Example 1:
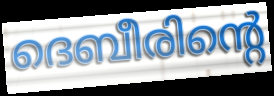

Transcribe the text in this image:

ദെബീരിന്റെ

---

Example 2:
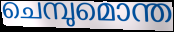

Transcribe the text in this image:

ചെമ്പുമൊന്ത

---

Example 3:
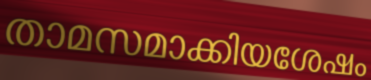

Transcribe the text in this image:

താമസമാക്കിയശേഷം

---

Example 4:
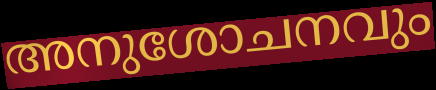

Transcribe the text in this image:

അനുശോചനവും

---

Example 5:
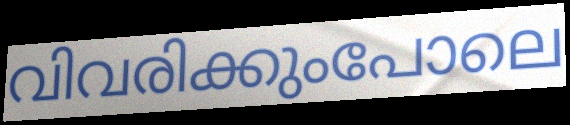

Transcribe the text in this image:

വിവരിക്കുംപോലെ